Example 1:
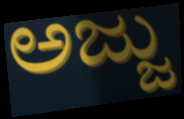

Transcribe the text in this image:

ಅಜ್ಜು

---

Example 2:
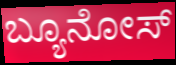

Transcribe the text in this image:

ಬ್ಯೂನೋಸ್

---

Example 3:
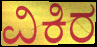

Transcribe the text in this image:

ವಿಕಿರ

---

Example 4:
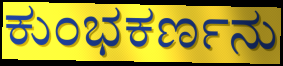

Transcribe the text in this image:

ಕುಂಭಕರ್ಣನು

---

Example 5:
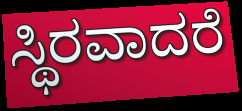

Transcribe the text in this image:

ಸ್ಥಿರವಾದರೆ